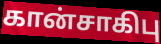
கான்சாகிபு